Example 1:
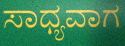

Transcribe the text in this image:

ಸಾಧ್ಯವಾಗ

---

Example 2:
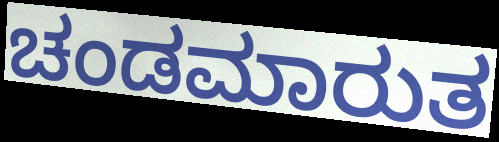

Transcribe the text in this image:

ಚಂಡಮಾರುತ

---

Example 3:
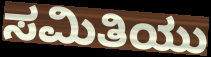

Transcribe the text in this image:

ಸಮಿತಿಯು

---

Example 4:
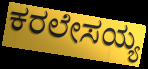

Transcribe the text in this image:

ಕರಲೇಸಯ್ಯ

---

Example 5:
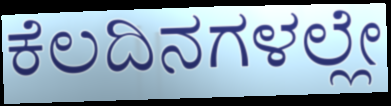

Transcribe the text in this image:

ಕೆಲದಿನಗಳಲ್ಲೇ